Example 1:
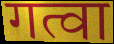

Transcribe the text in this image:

गत्वा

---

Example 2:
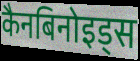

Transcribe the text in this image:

कैनबिनोइड्स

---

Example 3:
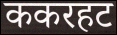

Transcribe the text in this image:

ककरहट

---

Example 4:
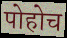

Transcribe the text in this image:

पोहोच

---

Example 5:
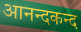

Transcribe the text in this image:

आनन्दकन्द